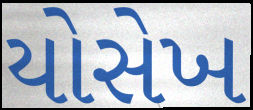
યોસેખ